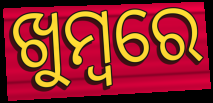
ଖୁମ୍ବରେ